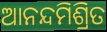
ଆନନ୍ଦମିଶ୍ରିତ